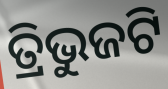
ତ୍ରିଭୁଜଟି